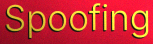
Spoofing